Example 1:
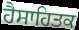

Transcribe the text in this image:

ਹੈਸਾਹਿਤਕ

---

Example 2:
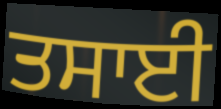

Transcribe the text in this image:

ਤਸਾਈ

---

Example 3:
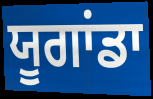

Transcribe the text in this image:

ਯੂਗਾਂਡਾ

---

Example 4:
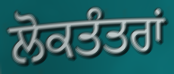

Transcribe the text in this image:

ਲੋਕਤੰਤਰਾਂ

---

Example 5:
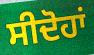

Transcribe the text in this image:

ਸੀਦੋਹਾਂ